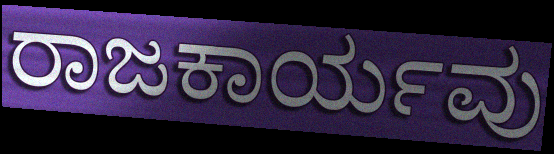
ರಾಜಕಾರ್ಯವು